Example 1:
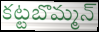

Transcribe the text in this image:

కట్టబొమ్మన్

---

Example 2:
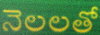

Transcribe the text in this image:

నెలలతో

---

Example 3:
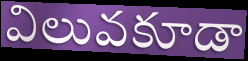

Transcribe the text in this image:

విలువకూడా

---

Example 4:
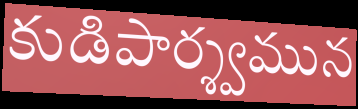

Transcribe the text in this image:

కుడిపార్శ్వమున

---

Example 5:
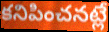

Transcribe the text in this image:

కనిపించనట్లే